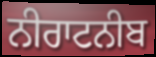
ਨੀਰਾਟਨੀਬ